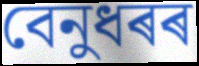
বেনুধৰৰ